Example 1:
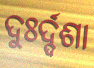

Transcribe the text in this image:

ଦୁଃର୍ଦ୍ଦଶା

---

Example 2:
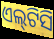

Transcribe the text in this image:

ଏଲ୍‌ଟିସି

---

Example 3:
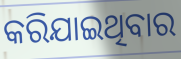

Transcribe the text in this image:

କରିଯାଇଥିବାର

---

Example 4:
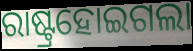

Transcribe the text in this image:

ରାଷ୍ଟ୍ରହୋଇଗଲା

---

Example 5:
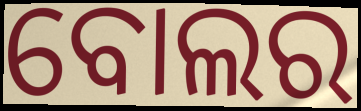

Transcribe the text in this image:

ବୋଲର